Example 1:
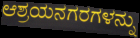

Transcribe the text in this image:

ಆಶ್ರಯನಗರಗಳನ್ನು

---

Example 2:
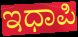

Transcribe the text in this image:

ಇಧಾಪಿ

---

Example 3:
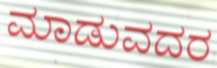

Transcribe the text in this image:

ಮಾಡುವದರ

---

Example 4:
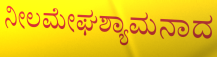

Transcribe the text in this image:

ನೀಲಮೇಘಶ್ಯಾಮನಾದ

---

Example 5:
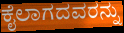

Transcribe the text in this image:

ಕೈಲಾಗದವರನ್ನು